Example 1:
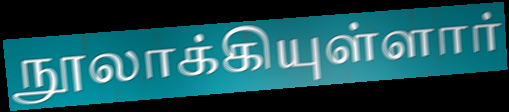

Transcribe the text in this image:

நூலாக்கியுள்ளார்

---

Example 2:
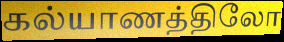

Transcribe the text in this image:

கல்யாணத்திலோ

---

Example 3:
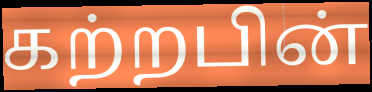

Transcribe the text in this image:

கற்றபின்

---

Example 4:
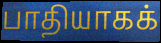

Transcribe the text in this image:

பாதியாகக்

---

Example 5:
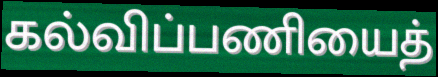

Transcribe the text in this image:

கல்விப்பணியைத்